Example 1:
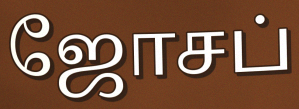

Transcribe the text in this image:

ஜோசப்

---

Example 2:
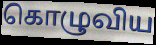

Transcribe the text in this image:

கொழுவிய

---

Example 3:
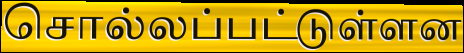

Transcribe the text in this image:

சொல்லப்பட்டுள்ளன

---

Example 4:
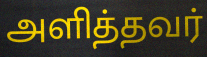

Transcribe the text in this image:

அளித்தவர்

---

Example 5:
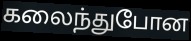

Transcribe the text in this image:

கலைந்துபோன